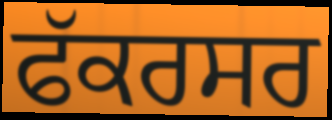
ਫੱਕਰਸਰ